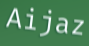
Aijaz